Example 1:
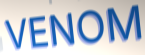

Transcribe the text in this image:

VENOM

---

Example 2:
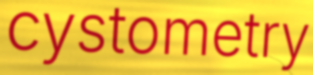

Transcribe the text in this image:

cystometry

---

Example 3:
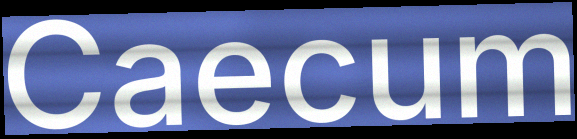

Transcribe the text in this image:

Caecum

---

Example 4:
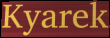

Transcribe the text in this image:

Kyarek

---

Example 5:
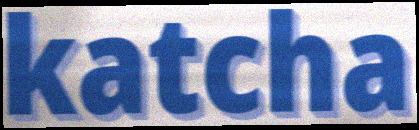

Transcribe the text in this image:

katcha